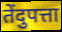
तेंदुपत्ता